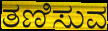
ತಣಿಸುವ